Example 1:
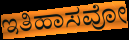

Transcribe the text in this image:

ಇತಿಹಾಸವೋ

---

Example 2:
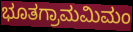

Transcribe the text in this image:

ಭೂತಗ್ರಾಮಮಿಮಂ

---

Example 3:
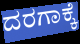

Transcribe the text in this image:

ದರಗಾಕ್ಕೆ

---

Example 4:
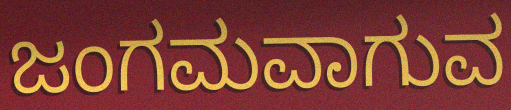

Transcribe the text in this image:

ಜಂಗಮವಾಗುವ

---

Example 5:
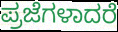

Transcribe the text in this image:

ಪ್ರಜೆಗಳಾದರೆ